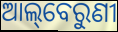
ଆଲ୍‌ବେରୁଣୀ